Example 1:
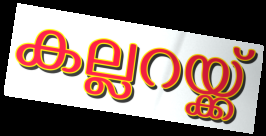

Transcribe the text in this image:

കല്ലറയ്ക്ക്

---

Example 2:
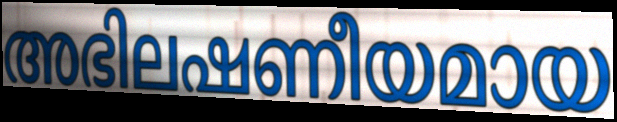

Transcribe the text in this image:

അഭിലഷണീയമായ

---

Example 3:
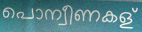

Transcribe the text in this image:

പൊന്വീണകള്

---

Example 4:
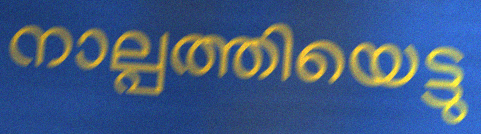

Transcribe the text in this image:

നാല്പത്തിയെട്ടു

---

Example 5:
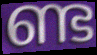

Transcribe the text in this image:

ണ്ട